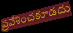
ప్రవేశించకూడదు